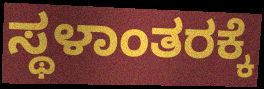
ಸ್ಥಳಾಂತರಕ್ಕೆ